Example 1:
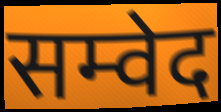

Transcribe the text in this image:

सम्वेद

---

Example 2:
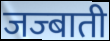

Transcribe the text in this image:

जज्‍बाती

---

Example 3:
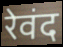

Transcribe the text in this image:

रेवंद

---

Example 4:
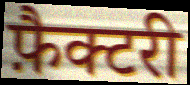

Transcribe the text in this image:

फ़ैक्टरी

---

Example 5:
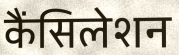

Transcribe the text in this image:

कैंसिलेशन